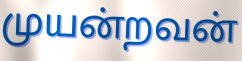
முயன்றவன்